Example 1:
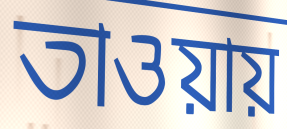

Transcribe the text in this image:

তাওয়ায়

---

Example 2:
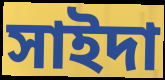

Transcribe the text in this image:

সাইদা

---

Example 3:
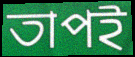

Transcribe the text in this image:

তাপই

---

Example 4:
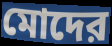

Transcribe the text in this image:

মোদের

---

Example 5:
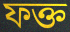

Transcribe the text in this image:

ফক্ত